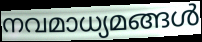
നവമാധ്യമങ്ങൾ